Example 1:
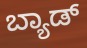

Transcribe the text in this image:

ಬ್ಯಾಡ್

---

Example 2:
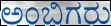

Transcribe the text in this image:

ಅಂಬಿಗರು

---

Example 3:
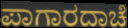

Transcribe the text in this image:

ಪಾಗಾರದಾಚೆ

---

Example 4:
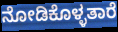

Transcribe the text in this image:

ನೋಡಿಕೊಳ್ಳತಾರೆ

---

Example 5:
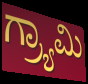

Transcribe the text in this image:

ಗ್ರ್ಯಾಮಿ